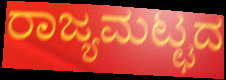
ರಾಜ್ಯಮಟ್ಟದ